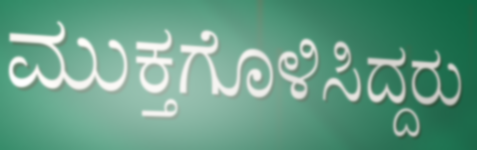
ಮುಕ್ತಗೊಳಿಸಿದ್ದರು